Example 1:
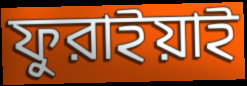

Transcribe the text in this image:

ফুরাইয়াই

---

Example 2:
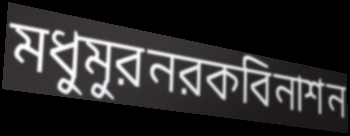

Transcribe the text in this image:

মধুমুরনরকবিনাশন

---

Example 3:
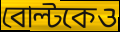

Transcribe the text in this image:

বোল্টকেও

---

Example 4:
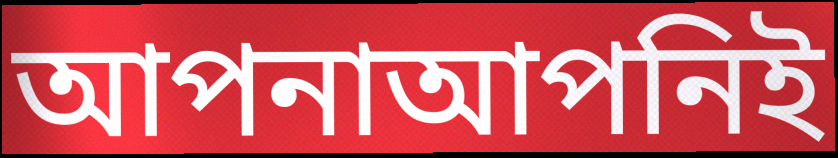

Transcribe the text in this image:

আপনাআপনিই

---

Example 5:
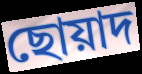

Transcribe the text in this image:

ছোয়াদ